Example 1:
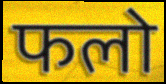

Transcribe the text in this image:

फलो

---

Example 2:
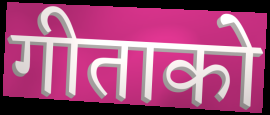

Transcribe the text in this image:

गीताको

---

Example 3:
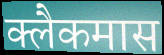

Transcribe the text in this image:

क्लैकमास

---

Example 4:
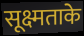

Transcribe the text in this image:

सूक्ष्मताके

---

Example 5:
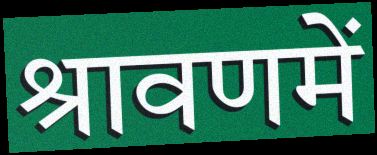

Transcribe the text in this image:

श्रावणमें